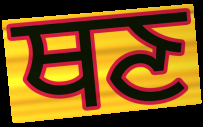
ਥਣ